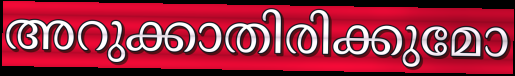
അറുക്കാതിരിക്കുമോ